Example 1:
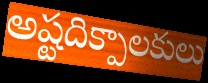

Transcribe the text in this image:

అష్టదిక్పాలకులు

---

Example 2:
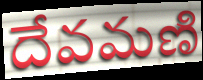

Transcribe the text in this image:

దేవమణి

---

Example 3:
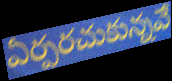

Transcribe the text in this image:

ఏర్పరచుకున్నవే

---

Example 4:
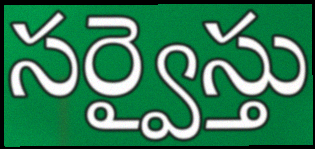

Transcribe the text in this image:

సర్వైస్తు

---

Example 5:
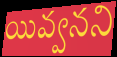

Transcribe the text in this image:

యివ్వనని